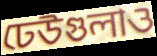
ঢেউগুলাও